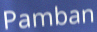
Pamban